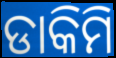
ଡାକିମି